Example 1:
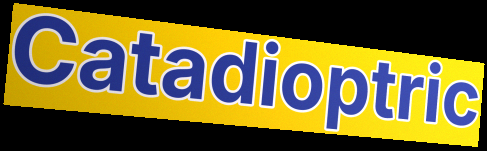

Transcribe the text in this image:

Catadioptric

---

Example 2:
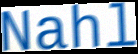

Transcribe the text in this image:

Nahl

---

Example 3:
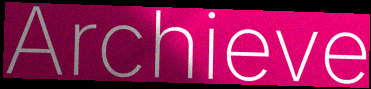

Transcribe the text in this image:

Archieve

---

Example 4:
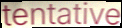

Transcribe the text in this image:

tentative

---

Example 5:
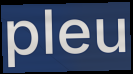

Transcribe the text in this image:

pleu